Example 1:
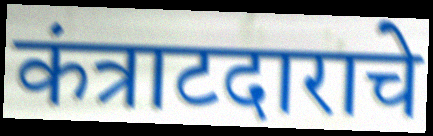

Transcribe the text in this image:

कंत्राटदाराचे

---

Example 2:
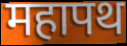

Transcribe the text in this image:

महापथ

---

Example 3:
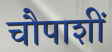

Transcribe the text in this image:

चौपाशीं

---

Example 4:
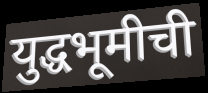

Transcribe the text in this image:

युद्धभूमीची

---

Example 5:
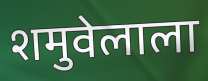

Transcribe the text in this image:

शमुवेलाला